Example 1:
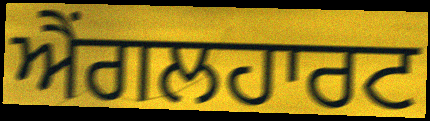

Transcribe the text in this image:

ਐਂਗਲਹਾਰਟ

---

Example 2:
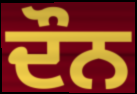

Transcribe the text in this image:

ਦੌਨ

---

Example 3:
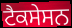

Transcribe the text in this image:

ਟੈਕਸੇਸਨ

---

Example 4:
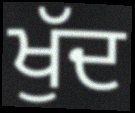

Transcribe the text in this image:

ਖੁੱਦ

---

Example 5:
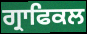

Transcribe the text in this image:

ਗ੍ਰਾਫਿਕਲ